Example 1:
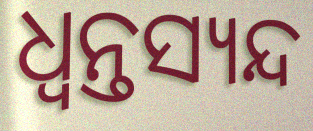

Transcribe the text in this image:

ଧ୍ଵନ୍ତସ୍ୟନ୍ଦ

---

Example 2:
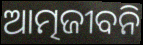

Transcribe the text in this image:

ଆତ୍ମଜୀବନି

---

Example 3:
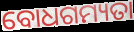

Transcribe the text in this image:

ବୋଧଗମ୍ୟତା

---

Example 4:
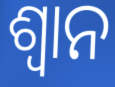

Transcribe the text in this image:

ଶ୍ଵାନ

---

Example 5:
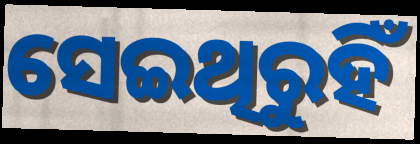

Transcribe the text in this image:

ସେଇଥିରୁହିଁ